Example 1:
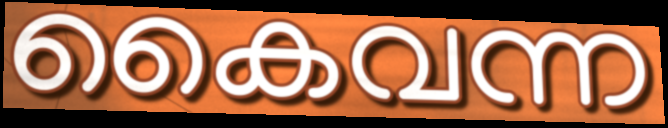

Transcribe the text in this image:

കൈവന്ന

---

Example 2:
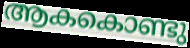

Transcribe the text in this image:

ആകകൊണ്ടു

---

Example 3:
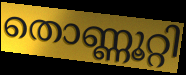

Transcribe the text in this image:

തൊണ്ണൂറ്റി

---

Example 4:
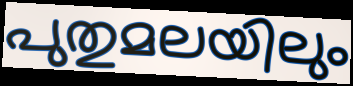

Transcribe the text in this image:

പുതുമലയിലും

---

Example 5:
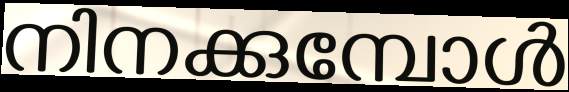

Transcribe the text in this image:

നിനക്കുമ്പോൾ